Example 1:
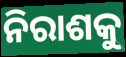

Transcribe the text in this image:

ନିରାଶକୁ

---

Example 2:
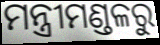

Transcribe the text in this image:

ମନ୍ତ୍ରୀମଣ୍ଡଳରୁ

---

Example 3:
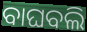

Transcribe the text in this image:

ବାଘବଲି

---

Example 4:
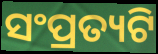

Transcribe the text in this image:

ସଂପ୍ରତ୍ୟଟି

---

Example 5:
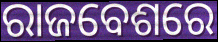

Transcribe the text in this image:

ରାଜବେଶରେ